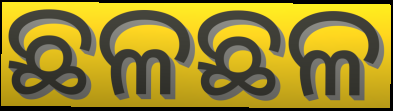
ଛଳଛଳ